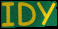
IDY